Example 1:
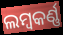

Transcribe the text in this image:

ଲମ୍ୱକର୍ଣ୍ଣ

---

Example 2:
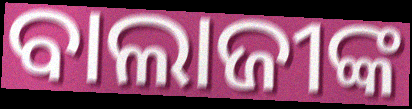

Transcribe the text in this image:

ବାଲାଜୀଙ୍କ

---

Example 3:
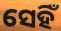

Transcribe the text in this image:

ସେହିଁ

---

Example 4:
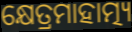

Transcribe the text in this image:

କ୍ଷେତ୍ରମାହାତ୍ମ୍ୟ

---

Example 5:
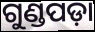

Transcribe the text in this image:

ଗୁଣ୍ଡପଡ଼ା